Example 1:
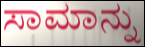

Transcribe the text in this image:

ಸಾಮಾನ್ನು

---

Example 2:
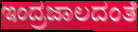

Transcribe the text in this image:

ಇಂದ್ರಜಾಲದಂತೆ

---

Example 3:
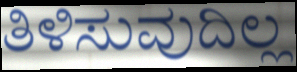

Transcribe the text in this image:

ತಿಳಿಸುವುದಿಲ್ಲ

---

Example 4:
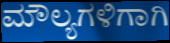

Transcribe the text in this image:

ಮೌಲ್ಯಗಳಿಗಾಗಿ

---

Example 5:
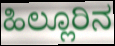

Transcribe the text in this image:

ಹಿಲ್ಲೂರಿನ